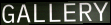
GALLERY